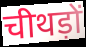
चीथड़ों